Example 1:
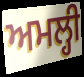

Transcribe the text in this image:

ਅਮਲ੍ਹੀ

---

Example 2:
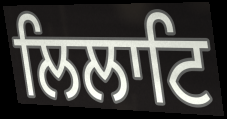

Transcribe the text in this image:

ਲਿਲਾਟਿ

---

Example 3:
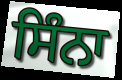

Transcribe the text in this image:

ਸਿੰਨਾ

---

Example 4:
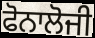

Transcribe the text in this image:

ਫੋਨਾਲੋਜੀ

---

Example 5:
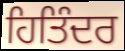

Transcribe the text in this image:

ਹਿਤਿੰਦਰ